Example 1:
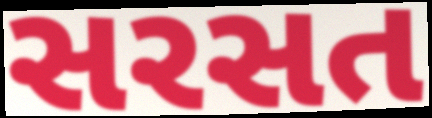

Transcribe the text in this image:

સરસત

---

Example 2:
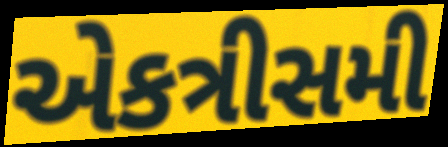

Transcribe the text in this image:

એકત્રીસમી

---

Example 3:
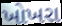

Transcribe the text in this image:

ખોખરા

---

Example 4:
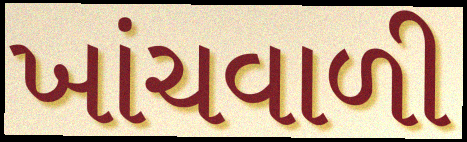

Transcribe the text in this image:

ખાંચવાળી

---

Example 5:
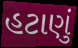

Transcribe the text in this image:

હટાણું